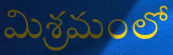
మిశ్రమంలో